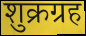
शुक्रग्रह